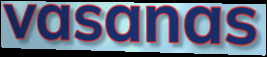
vasanas